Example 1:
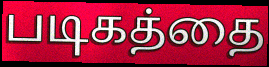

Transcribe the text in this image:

படிகத்தை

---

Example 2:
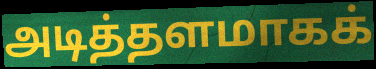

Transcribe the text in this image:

அடித்தளமாகக்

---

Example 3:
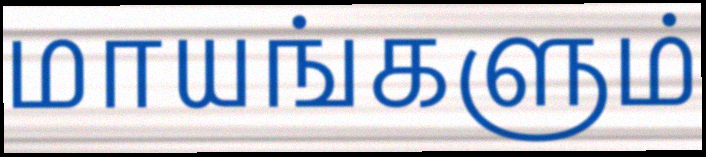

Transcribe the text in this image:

மாயங்களும்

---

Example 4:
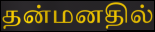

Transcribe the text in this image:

தன்மனதில்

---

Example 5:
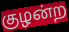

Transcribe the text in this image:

குழன்ற